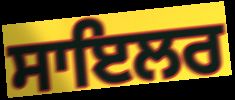
ਸਾਇਲਰ